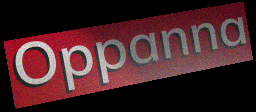
Oppanna